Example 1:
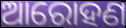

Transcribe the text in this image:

ଆରୋହଣ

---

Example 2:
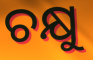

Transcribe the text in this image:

ଚକ୍ଷୁ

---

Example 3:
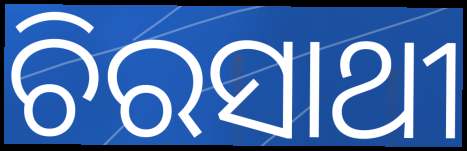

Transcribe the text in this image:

ଚିରସାଥୀ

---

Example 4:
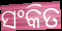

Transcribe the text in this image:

ସଂକିତ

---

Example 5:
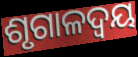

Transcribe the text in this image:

ଶୃଗାଳଦ୍ୱୟ